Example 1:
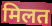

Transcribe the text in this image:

मिलत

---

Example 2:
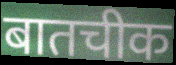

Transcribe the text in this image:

बातचीक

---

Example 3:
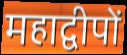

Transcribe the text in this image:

महाद्वीपों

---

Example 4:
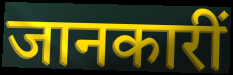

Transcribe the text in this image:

जानकारीं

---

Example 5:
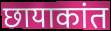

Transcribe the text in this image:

छायाकांत